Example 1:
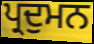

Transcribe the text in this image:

ਪ੍ਰਦੁਮਨ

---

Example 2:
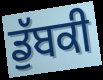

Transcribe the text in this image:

ਡੁੱਬਕੀ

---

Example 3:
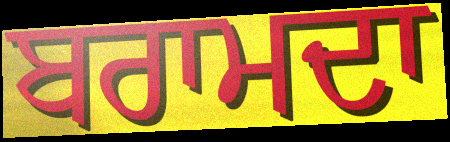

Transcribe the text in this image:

ਬਰਾਮਦਾ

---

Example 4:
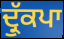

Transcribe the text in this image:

ਦ੍ਰੁੱਕਪਾ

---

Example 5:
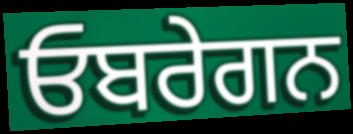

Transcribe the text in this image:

ਓਬਰੇਗਨ